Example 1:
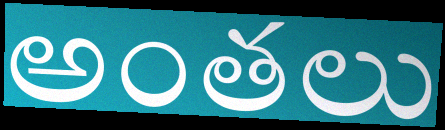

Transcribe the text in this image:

అంతలు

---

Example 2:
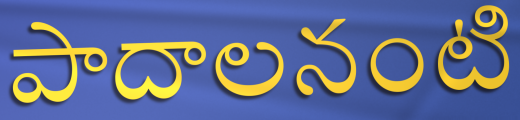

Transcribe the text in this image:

పాదాలనంటి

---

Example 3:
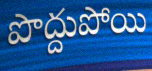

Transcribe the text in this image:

పొద్దుపోయి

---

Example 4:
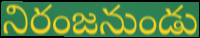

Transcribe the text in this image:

నిరంజనుండు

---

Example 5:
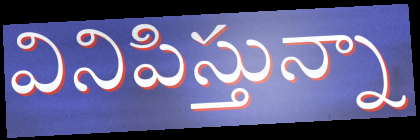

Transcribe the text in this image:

వినిపిస్తున్నా